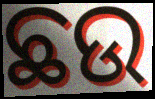
ଛଉ